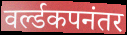
वर्ल्डकपनंतर